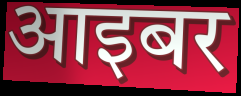
आइबर